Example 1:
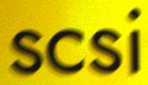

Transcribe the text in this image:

scsi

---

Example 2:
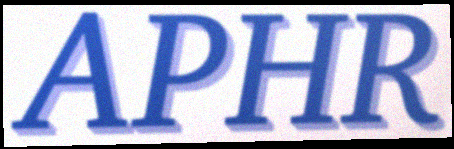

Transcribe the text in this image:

APHR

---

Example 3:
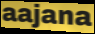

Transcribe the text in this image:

aajana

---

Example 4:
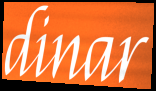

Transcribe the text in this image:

dinar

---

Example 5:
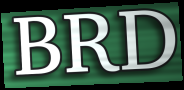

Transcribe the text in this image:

BRD